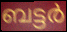
ബട്ടർ